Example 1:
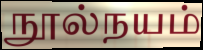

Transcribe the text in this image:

நூல்நயம்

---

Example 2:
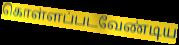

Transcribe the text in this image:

கொள்ளப்படவேண்டிய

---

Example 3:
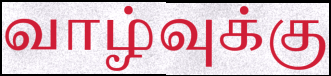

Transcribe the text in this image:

வாழ்வுக்கு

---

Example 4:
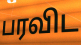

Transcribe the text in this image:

பரவிட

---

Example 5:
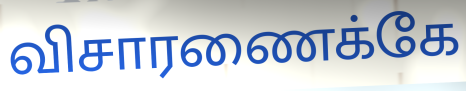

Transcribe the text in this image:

விசாரணைக்கே